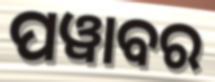
ପୱାବର